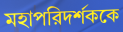
মহাপরিদর্শককে